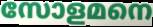
സോളമനെ